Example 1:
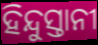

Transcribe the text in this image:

ହିନ୍ଦୁସ୍ତାନୀ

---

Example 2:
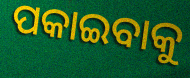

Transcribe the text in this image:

ପକାଇବାକୁ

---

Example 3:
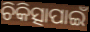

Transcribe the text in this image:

ଚିକିତ୍ସାପାଇଁ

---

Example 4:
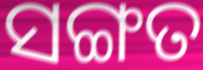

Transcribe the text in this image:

ସଙ୍ଗତ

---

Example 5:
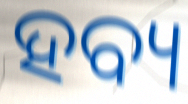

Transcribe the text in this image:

ହବ୍ୟ